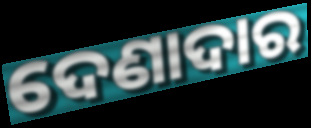
ଦେଣାଦାର